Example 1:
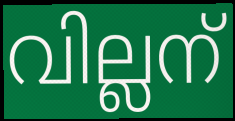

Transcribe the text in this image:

വില്ലന്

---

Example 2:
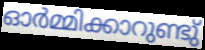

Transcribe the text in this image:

ഓർമ്മിക്കാറുണ്ടു്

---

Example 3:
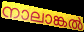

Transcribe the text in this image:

നാലാങ്കൽ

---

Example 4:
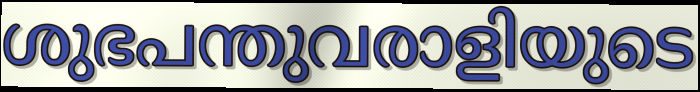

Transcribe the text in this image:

ശുഭപന്തുവരാളിയുടെ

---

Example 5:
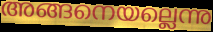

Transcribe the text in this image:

അങ്ങനെയല്ലെന്നു